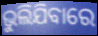
ଭୁଲିଯିବାରେ